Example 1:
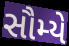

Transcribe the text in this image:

સૌમ્યે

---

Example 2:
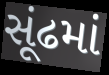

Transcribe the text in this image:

સૂંઢમાં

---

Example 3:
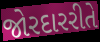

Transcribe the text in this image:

જોરદારરીતે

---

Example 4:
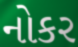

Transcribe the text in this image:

નોકર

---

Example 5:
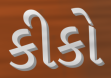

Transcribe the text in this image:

કીકો